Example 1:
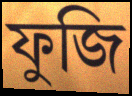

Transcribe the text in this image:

ফুজি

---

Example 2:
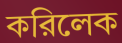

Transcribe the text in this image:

করিলেক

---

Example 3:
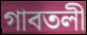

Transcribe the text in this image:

গাবতলী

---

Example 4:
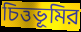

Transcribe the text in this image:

চিত্তভূমির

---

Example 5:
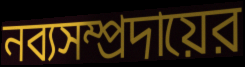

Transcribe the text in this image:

নব্যসম্প্রদায়ের